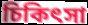
চিকিৎসা